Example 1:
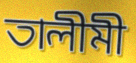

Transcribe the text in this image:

তালীমী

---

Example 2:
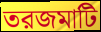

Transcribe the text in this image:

তরজমাটি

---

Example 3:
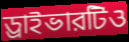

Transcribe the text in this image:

ড্রাইভারটিও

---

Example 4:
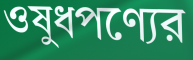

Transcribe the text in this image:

ওষুধপণ্যের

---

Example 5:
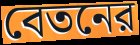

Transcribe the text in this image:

বেতনের